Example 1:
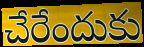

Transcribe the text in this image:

చేరేందుకు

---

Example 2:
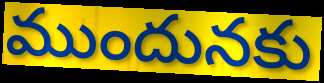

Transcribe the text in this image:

ముందునకు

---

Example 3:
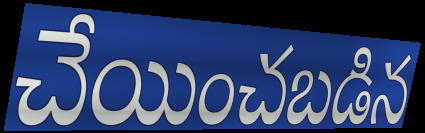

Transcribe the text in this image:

చేయించబడిన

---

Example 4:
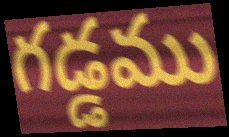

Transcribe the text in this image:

గడ్డము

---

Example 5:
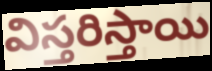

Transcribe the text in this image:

విస్తరిస్తాయి